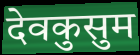
देवकुसुम